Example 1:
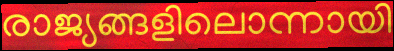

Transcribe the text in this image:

രാജ്യങ്ങളിലൊന്നായി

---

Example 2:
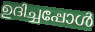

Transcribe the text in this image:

ഉദിച്ചപ്പോൾ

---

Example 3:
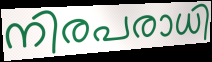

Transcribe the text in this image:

നിരപരാധി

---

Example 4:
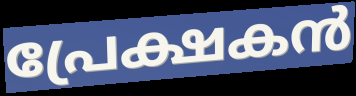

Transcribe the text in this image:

പ്രേക്ഷകൻ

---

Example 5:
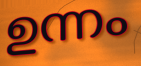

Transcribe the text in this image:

ഉന്നം